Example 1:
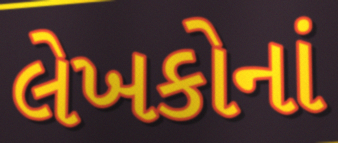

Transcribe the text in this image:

લેખકોનાં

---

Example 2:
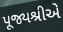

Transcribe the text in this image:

પૂજ્યશ્રીએ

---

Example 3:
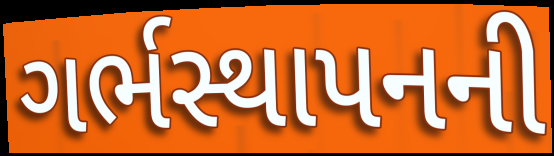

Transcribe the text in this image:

ગર્ભસ્થાપનની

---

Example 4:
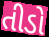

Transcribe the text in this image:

તીડો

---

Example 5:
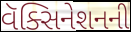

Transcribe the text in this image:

વૅક્સિનેશનની